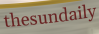
thesundaily